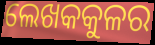
ଲେଖକକୁଳର